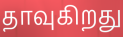
தாவுகிறது